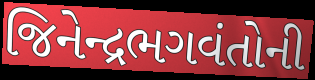
જિનેન્દ્રભગવંતોની